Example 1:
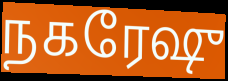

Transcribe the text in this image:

நகரேஷு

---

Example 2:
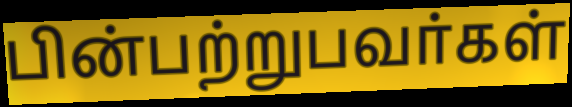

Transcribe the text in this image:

பின்பற்றுபவர்கள்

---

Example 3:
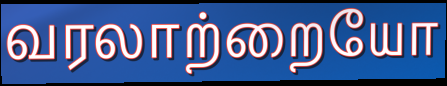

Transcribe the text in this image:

வரலாற்றையோ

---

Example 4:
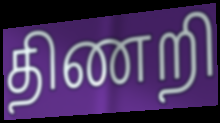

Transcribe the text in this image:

திணறி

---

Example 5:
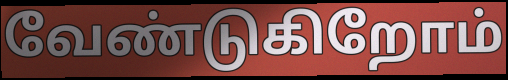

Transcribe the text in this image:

வேண்டுகிறோம்